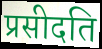
प्रसीदति